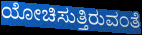
ಯೋಚಿಸುತ್ತಿರುವಂತೆ